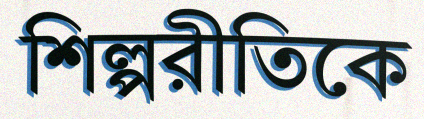
শিল্পরীতিকে